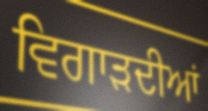
ਵਿਗਾੜਦੀਆਂ